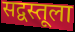
सद्वस्तूला